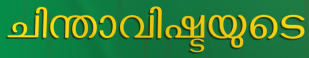
ചിന്താവിഷ്ടയുടെ